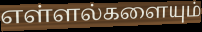
எள்ளல்களையும்